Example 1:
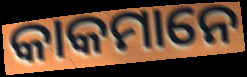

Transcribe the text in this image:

କାକମାନେ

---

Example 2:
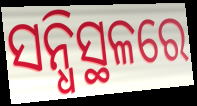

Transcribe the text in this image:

ସନ୍ଧିସ୍ଥଳରେ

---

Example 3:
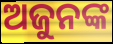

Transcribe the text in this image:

ଅଜୁନଙ୍କ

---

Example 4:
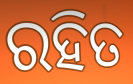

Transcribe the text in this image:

ରହିତ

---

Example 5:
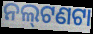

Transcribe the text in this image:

ନଲ୍‍ଟଣଟା